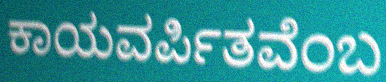
ಕಾಯವರ್ಪಿತವೆಂಬ